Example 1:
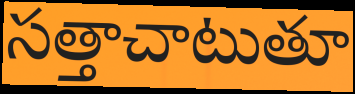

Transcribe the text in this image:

సత్తాచాటుతూ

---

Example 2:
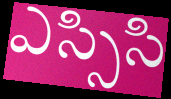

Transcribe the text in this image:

ఎస్సిసి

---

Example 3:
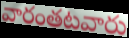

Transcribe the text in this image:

వారంతటవారు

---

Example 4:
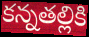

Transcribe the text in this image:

కన్నతల్లికి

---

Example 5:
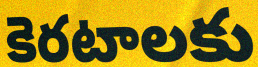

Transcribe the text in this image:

కెరటాలకు